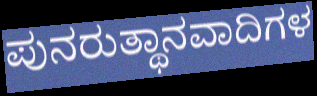
ಪುನರುತ್ಥಾನವಾದಿಗಳ